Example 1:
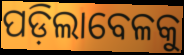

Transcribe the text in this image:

ପଡ଼ିଲାବେଳକୁ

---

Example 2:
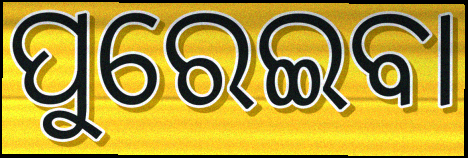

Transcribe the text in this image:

ପୁରେଇବା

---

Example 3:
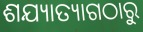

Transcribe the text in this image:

ଶଯ୍ୟାତ୍ୟାଗଠାରୁ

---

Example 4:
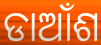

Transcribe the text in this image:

ଡାଆଁଶ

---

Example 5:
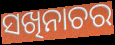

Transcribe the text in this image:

ସଖିନାଚର